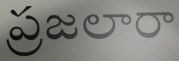
ప్రజలారా